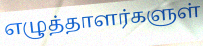
எழுத்தாளர்களுள்